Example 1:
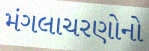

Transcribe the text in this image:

મંગલાચરણોનો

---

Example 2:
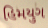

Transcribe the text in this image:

હિમયુગ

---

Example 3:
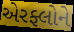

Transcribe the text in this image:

એરફ્લોને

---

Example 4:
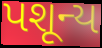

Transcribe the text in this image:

પશૂન્ય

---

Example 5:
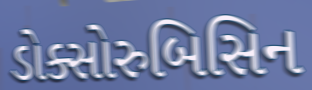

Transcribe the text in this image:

ડોક્સોરુબિસિન